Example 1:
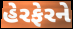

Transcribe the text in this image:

હેરફેરને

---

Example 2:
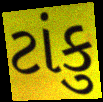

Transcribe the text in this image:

ટાંકુ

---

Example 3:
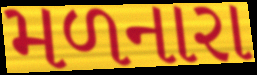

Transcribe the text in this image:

મળનારા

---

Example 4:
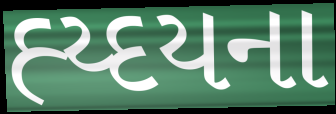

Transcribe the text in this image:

હ્ય્દયના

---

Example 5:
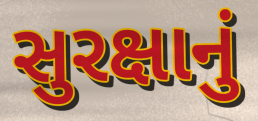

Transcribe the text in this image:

સુરક્ષાનું